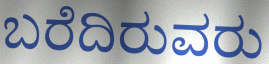
ಬರೆದಿರುವರು